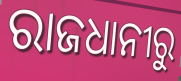
ରାଜଧାନୀରୁ